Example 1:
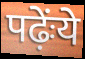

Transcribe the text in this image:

पढ़ेंःये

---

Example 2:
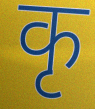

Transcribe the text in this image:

कृ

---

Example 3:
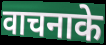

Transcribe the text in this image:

वाचनाके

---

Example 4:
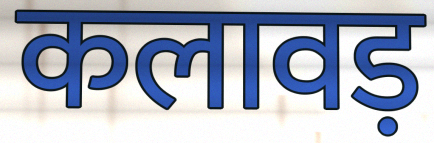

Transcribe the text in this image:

कलावड़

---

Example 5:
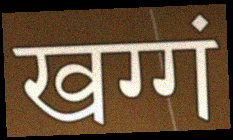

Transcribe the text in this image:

खग्गं